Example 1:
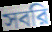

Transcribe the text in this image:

সবরি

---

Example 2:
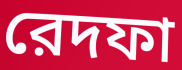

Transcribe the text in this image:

রেদফা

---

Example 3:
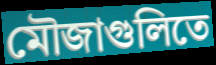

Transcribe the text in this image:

মৌজাগুলিতে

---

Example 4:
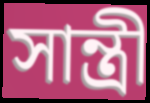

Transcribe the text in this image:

সান্ত্রী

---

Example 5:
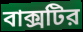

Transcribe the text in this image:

বাক্সটির